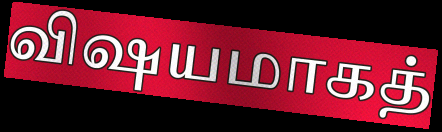
விஷயமாகத்